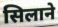
सिलाने